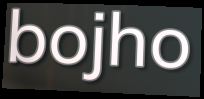
bojho